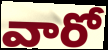
వారో